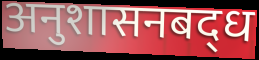
अनुशासनबद्ध